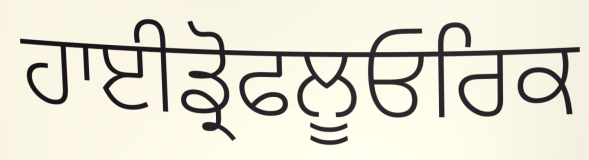
ਹਾਈਡ੍ਰੋਫਲੂਓਰਿਕ